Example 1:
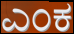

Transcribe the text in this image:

ಎಂಕ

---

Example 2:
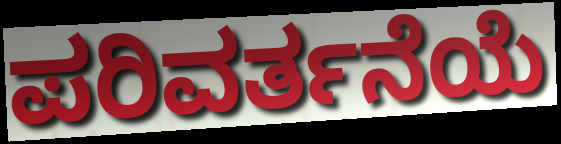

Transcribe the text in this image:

ಪರಿವರ್ತನೆಯೆ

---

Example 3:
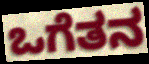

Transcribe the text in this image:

ಒಗೆತನ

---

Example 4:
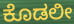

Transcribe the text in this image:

ಕೊಡಲೀ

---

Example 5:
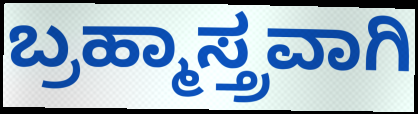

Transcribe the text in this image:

ಬ್ರಹ್ಮಾಸ್ತ್ರವಾಗಿ